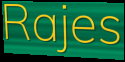
Rajes